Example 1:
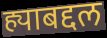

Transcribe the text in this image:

ह्याबद्दल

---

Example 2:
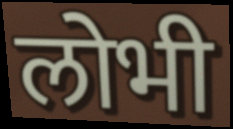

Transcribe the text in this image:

लोभी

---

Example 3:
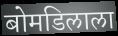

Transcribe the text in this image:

बोमडिलाला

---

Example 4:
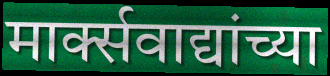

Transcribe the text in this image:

मार्क्सवाद्यांच्या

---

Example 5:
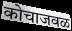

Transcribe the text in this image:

कोचाजवळ